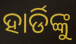
ହାର୍ଡିଙ୍କୁ